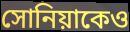
সোনিয়াকেও